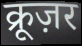
क्रूज़र